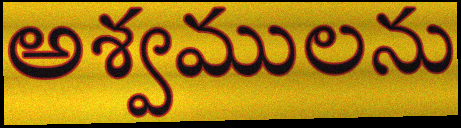
అశ్వములను